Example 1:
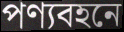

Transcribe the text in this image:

পণ্যবহনে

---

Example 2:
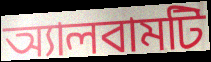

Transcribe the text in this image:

অ্যালবামটি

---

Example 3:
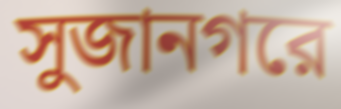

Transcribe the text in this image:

সুজানগরে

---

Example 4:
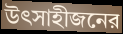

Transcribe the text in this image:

উৎসাহীজনের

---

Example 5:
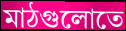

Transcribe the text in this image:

মাঠগুলোতে